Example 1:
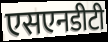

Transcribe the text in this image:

एसएनडीटी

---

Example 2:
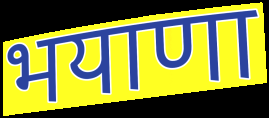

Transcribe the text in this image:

भयाणा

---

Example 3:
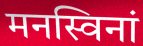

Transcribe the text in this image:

मनस्विनां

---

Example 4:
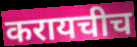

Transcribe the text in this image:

करायचीच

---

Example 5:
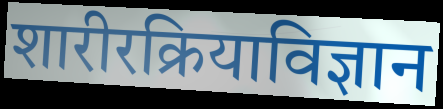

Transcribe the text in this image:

शारीरक्रियाविज्ञान